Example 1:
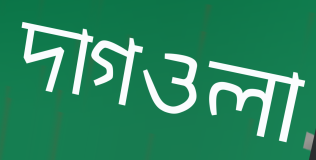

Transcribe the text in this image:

দাগওলা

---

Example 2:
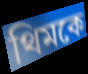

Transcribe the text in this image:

থিমকে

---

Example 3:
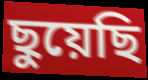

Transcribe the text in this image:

ছুয়েছি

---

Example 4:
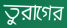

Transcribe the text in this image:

তুরাগের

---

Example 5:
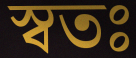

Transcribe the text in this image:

স্বতঃ